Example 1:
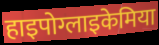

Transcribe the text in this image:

हाइपोग्लाइकेमिया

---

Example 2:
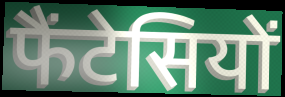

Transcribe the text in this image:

फैंटेसियों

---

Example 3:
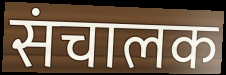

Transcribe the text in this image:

संचालक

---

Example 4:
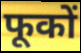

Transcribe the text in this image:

फूकों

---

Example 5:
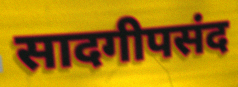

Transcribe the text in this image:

सादगीपसंद